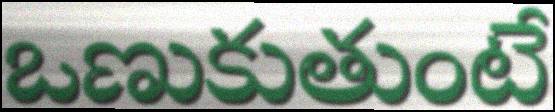
ఒణుకుతుంటే